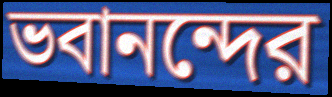
ভবানন্দের